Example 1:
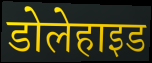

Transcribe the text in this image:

डोलेहाइड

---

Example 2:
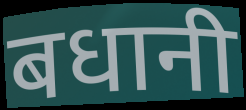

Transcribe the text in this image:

बधानी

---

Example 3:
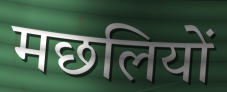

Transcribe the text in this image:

मछलियों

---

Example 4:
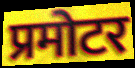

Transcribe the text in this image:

प्रमोटर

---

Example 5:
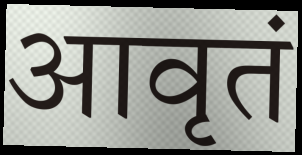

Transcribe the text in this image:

आवृतं